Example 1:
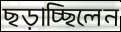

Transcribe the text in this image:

ছড়াচ্ছিলেন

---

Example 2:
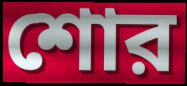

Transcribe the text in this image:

শোর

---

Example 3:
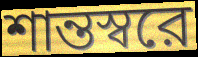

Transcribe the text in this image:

শান্তস্বরে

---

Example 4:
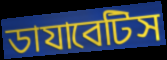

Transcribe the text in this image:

ডাযাবেটিস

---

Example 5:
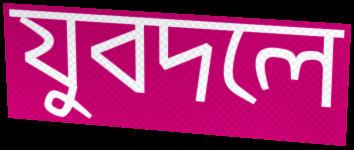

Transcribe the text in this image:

যুবদলে